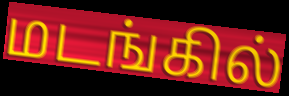
மடங்கில்